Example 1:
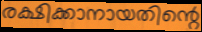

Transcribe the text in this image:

രക്ഷിക്കാനായതിന്റെ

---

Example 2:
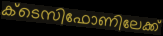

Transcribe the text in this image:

ക്ടെസിഫോണിലേക്ക്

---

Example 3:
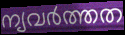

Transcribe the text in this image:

ന്യവർത്തത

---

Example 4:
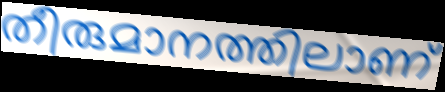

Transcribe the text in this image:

തീരുമാനത്തിലാണ്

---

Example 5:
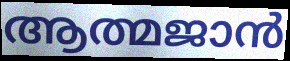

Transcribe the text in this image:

ആത്മജാൻ